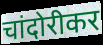
चांदोरीकर